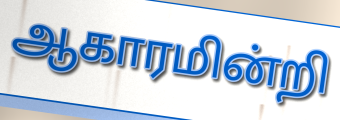
ஆகாரமின்றி